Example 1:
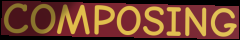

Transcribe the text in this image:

COMPOSING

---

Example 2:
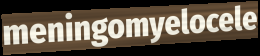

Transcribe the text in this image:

meningomyelocele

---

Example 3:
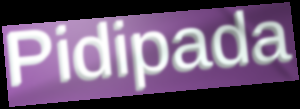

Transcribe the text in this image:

Pidipada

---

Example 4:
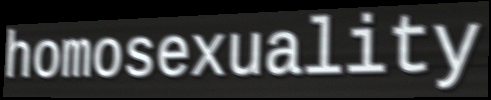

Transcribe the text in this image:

homosexuality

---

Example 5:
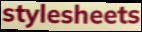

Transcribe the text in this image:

stylesheets